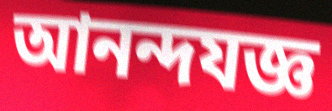
আনন্দযজ্ঞ